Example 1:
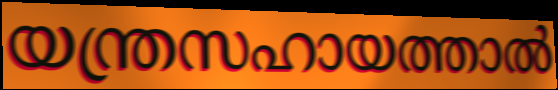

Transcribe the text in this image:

യന്ത്രസഹായത്താൽ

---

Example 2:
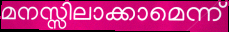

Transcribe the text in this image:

മനസ്സിലാക്കാമെന്ന്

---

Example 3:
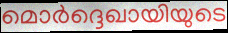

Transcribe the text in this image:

മൊർദ്ദെഖായിയുടെ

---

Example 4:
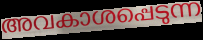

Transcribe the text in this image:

അവകാശപ്പെടുന്ന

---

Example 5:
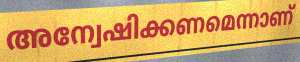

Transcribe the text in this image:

അന്വേഷിക്കണമെന്നാണ്